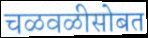
चळवळीसोबत